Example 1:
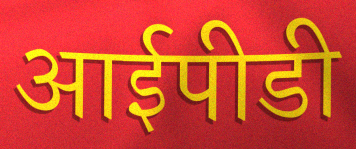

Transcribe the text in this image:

आईपीडी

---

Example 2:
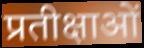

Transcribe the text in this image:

प्रतीक्षाओं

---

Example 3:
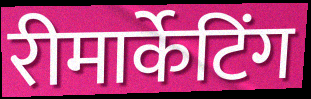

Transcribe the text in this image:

रीमार्केटिंग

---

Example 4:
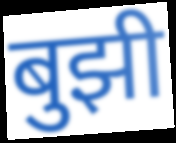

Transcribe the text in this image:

बुझी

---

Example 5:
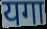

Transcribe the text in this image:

यगा